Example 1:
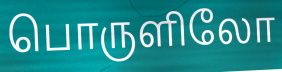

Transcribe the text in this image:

பொருளிலோ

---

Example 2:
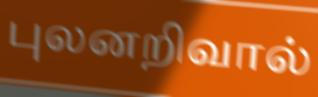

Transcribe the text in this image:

புலனறிவால்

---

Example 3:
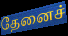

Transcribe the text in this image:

தேனைச்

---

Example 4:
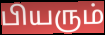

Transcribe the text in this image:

பியரும்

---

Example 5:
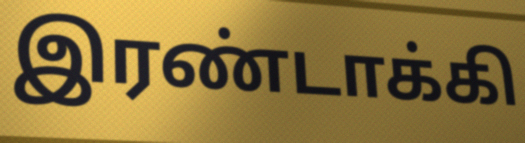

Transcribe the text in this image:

இரண்டாக்கி